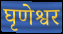
घृणेश्वर